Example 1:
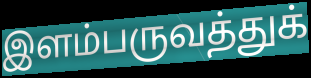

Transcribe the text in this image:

இளம்பருவத்துக்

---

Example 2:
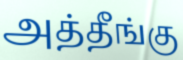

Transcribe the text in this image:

அத்தீங்கு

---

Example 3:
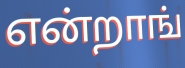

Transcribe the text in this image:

என்றாங்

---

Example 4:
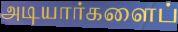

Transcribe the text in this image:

அடியார்களைப்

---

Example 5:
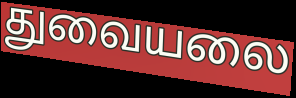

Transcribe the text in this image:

துவையலை